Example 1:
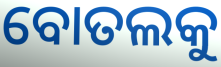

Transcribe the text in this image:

ବୋତଲକୁ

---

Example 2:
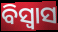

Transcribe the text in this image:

ବିସ୍ବାସ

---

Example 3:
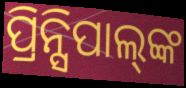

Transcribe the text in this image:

ପ୍ରିନ୍ସିପାଲ୍‍ଙ୍କ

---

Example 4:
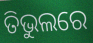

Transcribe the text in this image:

ତିଭୁଲରେ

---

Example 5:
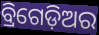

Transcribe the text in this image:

ବ୍ରିଗେଡ଼ିଅର